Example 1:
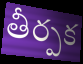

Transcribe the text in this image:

తీర్పక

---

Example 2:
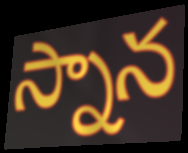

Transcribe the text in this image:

స్నాన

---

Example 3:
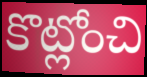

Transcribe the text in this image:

కొట్లోంచి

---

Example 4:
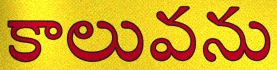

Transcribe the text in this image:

కాలువను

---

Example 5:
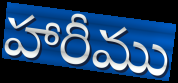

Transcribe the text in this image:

హారీము